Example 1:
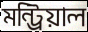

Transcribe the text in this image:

মন্ট্রিয়াল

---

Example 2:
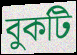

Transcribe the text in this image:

বুকটি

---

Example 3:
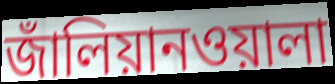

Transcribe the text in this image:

জাঁলিয়ানওয়ালা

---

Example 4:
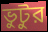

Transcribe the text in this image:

ভুটুর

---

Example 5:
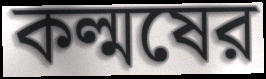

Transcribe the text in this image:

কল্মষের